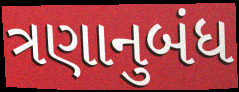
ત્રણાનુબંધ